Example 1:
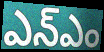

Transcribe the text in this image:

ఎన్ఎం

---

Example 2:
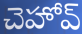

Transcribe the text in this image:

చెహోవ్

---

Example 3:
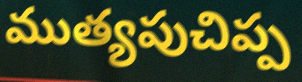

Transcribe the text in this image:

ముత్యపుచిప్ప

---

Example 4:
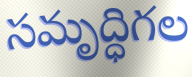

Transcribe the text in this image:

సమృద్ధిగల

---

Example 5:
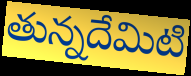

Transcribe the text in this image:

తున్నదేమిటి